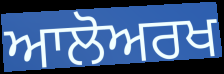
ਆਲੋਅਰਖ